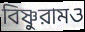
বিষ্ণুরামও